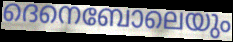
ദെനെബോലെയും